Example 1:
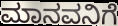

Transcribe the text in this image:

ಮಾನವನಿಗೆ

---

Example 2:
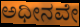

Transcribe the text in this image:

ಅಧೀನವೇ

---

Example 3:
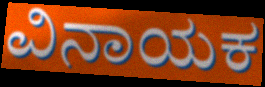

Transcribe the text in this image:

ವಿನಾಯಕ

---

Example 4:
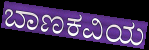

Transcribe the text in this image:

ಬಾಣಕವಿಯ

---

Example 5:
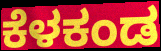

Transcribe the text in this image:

ಕೆಳಕಂಡ